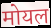
मोयल